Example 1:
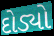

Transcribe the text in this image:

દોડ્યો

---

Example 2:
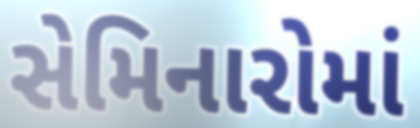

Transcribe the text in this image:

સેમિનારોમાં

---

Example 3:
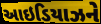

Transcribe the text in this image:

આઇડિયાઝને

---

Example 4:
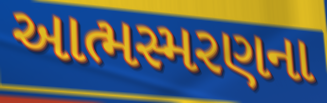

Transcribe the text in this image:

આત્મસ્મરણના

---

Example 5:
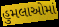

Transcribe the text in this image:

હુમલાઓમાં